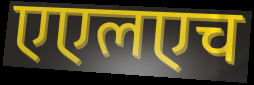
एएलएच